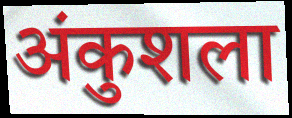
अंकुशला